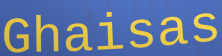
Ghaisas